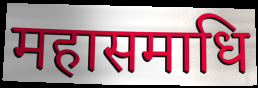
महासमाधि